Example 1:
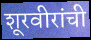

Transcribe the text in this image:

शूरवीरांची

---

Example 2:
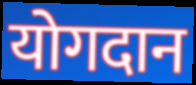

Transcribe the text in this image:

योगदान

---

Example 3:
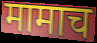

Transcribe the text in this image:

मामाच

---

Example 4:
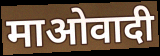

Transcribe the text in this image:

माओवादी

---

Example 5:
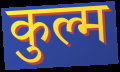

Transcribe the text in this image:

कुल्म